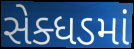
સેક્ધડમાં